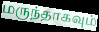
மருந்தாகவும்